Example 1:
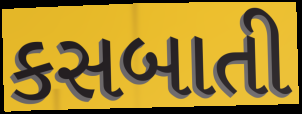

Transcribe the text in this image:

કસબાતી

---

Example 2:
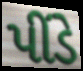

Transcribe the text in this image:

પીંડે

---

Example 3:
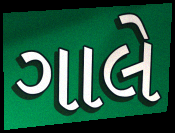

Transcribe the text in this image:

ગાલે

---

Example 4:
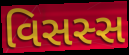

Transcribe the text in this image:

વિસસ્સ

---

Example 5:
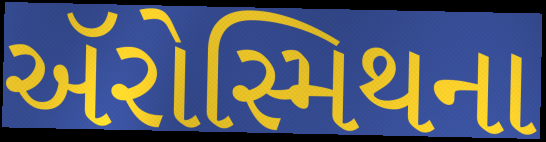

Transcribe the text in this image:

ઍરોસ્મિથના